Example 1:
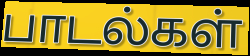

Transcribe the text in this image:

பாடல்கள்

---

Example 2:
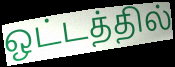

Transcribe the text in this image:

ஒட்டத்தில்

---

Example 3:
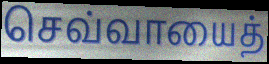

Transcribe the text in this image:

செவ்வாயைத்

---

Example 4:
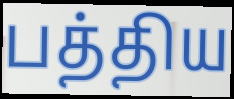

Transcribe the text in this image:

பத்திய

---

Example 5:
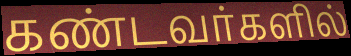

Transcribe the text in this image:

கண்டவர்களில்